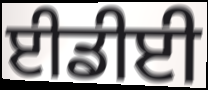
ਈਡੀਈ